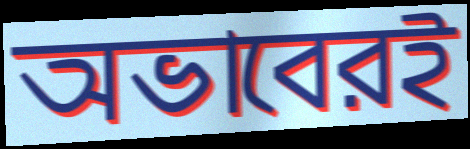
অভাবেরই